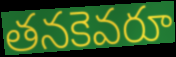
తనకెవరూ